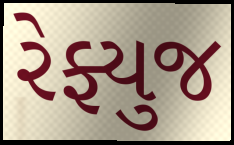
રેફ્યુજ